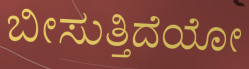
ಬೀಸುತ್ತಿದೆಯೋ